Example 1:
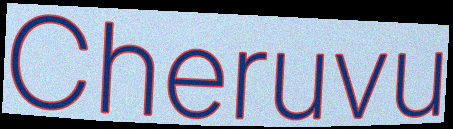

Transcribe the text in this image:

Cheruvu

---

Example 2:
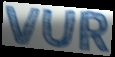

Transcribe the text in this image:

VUR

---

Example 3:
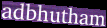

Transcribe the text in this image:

adbhutham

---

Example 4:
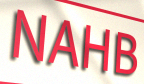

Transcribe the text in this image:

NAHB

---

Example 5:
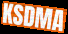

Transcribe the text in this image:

KSDMA